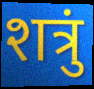
शत्रुं